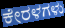
ಕೇರಳಗಳು